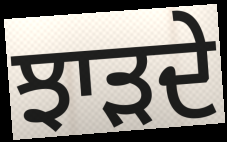
ਝਾੜਦੇ